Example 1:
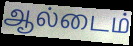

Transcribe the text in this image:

ஆல்டைம்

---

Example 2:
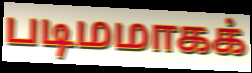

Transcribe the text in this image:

படிமமாகக்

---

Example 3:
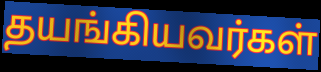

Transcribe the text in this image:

தயங்கியவர்கள்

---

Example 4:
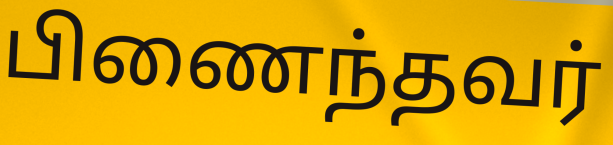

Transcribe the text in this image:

பிணைந்தவர்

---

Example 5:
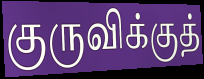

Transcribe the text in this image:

குருவிக்குத்